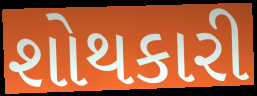
શોથકારી